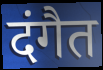
दंगैत